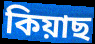
কিয়াছ